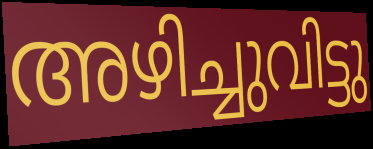
അഴിച്ചുവിട്ടു